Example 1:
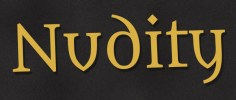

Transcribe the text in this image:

Nudity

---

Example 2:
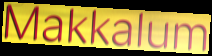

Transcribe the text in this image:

Makkalum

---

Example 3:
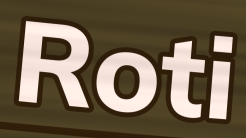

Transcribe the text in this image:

Roti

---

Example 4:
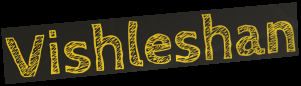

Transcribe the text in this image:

Vishleshan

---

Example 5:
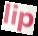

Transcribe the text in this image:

lip